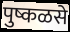
पुष्कळसे